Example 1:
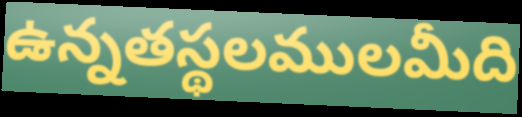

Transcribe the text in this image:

ఉన్నతస్థలములమీది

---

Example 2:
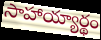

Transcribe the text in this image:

సాహాయ్యార్థం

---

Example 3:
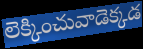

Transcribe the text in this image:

లెక్కించువాడెక్కడ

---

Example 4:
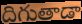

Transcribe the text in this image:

దిగుతాడా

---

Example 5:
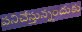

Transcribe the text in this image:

పనిచేస్తున్నందుకు